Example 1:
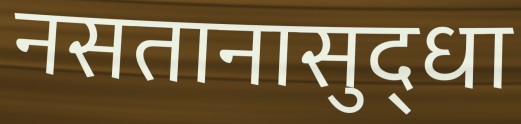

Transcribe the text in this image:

नसतानासुद्धा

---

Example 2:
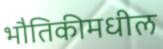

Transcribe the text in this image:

भौतिकीमधील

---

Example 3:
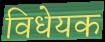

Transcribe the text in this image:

विधेयक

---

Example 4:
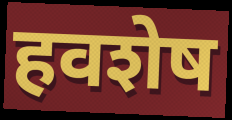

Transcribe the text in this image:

हवशेष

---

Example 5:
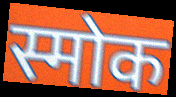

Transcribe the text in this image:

स्मोक